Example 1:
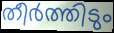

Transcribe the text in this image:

തീർത്തിടും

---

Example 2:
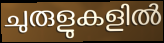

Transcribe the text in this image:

ചുരുളുകളിൽ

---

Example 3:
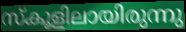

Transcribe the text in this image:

സ്കൂളിലായിരുന്നു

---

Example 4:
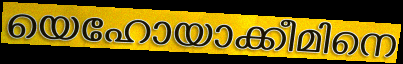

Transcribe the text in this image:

യെഹോയാക്കീമിനെ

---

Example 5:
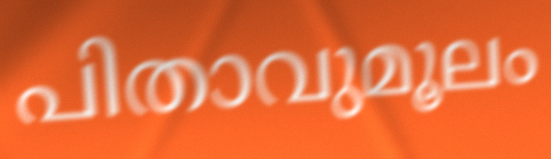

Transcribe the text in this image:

പിതാവുമൂലം